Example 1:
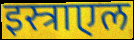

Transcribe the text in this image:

इस्त्राएल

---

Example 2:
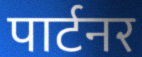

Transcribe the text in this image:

पार्टनर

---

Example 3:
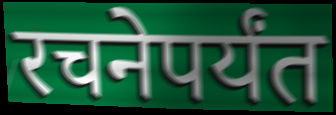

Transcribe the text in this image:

रचनेपर्यंत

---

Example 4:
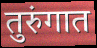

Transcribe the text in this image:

तुरुंगात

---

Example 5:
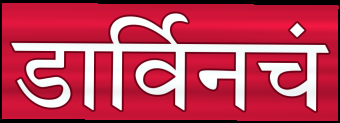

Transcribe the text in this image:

डार्विनचं